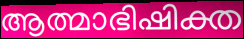
ആത്മാഭിഷിക്ത